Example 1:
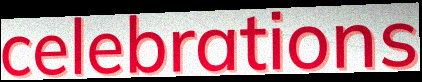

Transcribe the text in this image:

celebrations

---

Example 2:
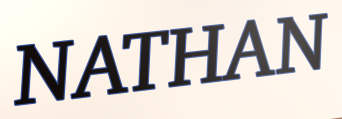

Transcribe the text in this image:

NATHAN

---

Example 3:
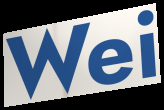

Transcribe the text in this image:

Wei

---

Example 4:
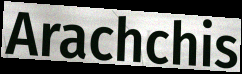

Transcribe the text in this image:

Arachchis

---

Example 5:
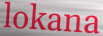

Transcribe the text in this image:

lokana